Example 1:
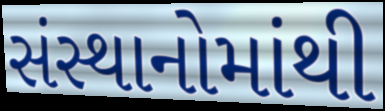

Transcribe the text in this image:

સંસ્થાનોમાંથી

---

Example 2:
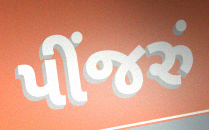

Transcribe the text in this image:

પીંજરું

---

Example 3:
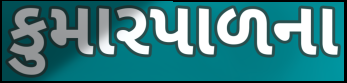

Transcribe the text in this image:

કુમારપાળના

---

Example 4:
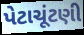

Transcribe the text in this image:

પેટાચૂંટણી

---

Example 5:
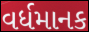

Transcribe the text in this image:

વર્ધમાનક